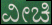
ವೀಚಿ